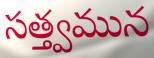
సత్త్వమున